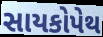
સાયકોપેથ